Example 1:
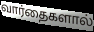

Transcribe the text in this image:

வார்தைகளால்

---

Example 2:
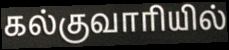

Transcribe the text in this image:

கல்குவாரியில்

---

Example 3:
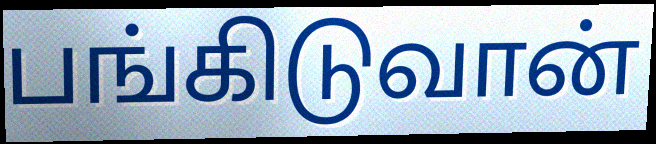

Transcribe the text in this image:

பங்கிடுவான்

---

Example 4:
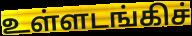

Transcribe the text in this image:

உள்ளடங்கிச்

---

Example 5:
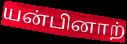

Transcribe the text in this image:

யன்பினாற்